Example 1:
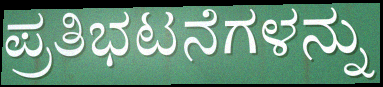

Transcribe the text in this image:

ಪ್ರತಿಭಟನೆಗಳನ್ನು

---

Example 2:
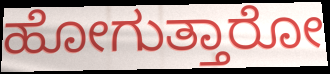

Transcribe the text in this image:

ಹೋಗುತ್ತಾರೋ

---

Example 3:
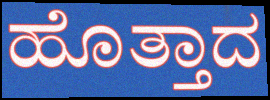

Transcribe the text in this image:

ಹೊತ್ತಾದ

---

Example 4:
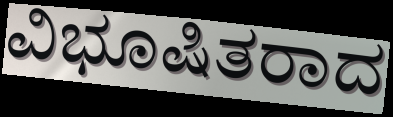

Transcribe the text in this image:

ವಿಭೂಷಿತರಾದ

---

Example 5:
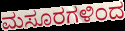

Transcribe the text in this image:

ಮಸೂರಗಳಿಂದ